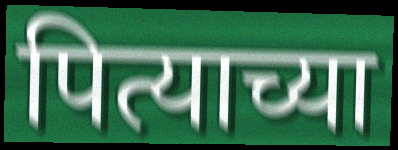
पित्याच्या